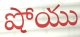
షోయు